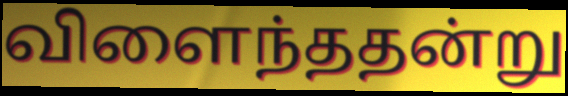
விளைந்ததன்று